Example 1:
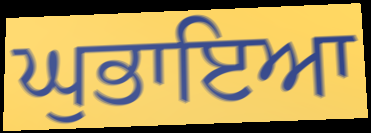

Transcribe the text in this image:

ਘੁਭਾਇਆ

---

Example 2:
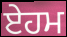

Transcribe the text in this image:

ਏਹਮ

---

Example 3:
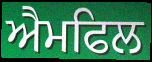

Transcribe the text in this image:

ਐਮਫਿਲ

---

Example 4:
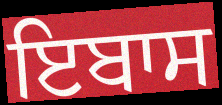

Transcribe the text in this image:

ਇਬਾਸ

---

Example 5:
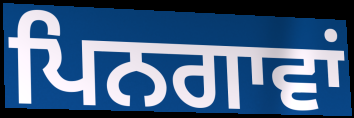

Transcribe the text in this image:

ਪਿਨਗਾਵਾਂ